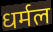
धर्मल